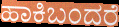
ಹಾಕಿಬಂದರೆ